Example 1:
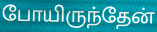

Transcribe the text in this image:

போயிருந்தேன்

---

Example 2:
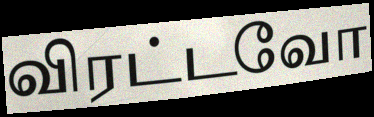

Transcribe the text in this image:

விரட்டவோ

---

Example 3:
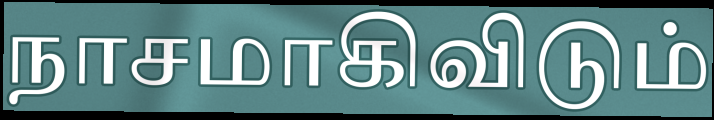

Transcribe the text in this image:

நாசமாகிவிடும்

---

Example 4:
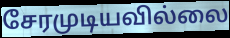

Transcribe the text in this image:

சேரமுடியவில்லை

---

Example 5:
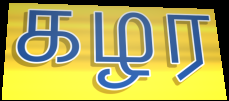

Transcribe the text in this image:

கழர